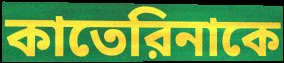
কাতেরিনাকে